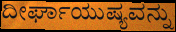
ದೀರ್ಘಾಯುಷ್ಯವನ್ನು